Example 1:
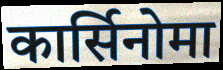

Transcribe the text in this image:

कार्सिनोमा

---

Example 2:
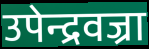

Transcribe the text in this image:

उपेन्द्रवज्रा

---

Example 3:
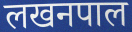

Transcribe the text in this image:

लखनपाल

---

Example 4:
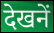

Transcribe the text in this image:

देखनें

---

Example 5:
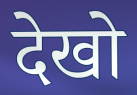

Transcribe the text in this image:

देखो